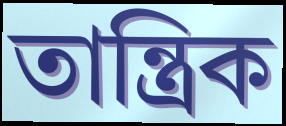
তান্ত্ৰিক